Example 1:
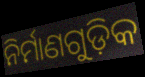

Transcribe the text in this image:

ନିର୍ମାଣଗୁଡ଼ିକ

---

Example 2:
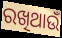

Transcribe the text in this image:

ରଖିଥାଉଁ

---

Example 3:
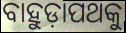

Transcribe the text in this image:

ବାହୁଡ଼ାପଥକୁ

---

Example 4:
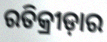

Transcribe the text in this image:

ରତିକ୍ରୀଡ଼ାର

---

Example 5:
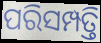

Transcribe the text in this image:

ପରିସମ୍ପତ୍ତି